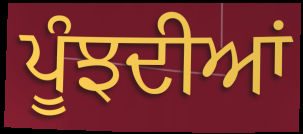
ਪੂੰਝਦੀਆਂ